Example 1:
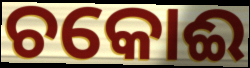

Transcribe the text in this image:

ଚକୋଈ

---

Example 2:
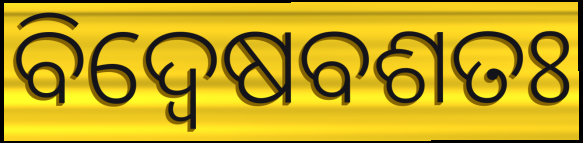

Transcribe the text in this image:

ବିଦ୍ୱେଷବଶତଃ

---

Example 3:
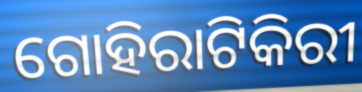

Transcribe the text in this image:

ଗୋହିରାଟିକିରୀ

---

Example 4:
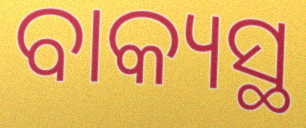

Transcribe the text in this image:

ବାକ୍ୟସ୍ଥ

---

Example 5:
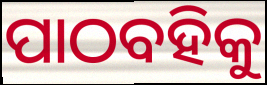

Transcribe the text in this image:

ପାଠବହିକୁ